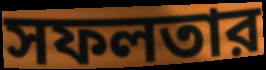
সফলতার